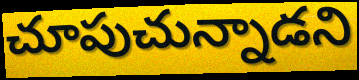
చూపుచున్నాడని